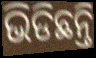
ଭିଡିଛନ୍ତି